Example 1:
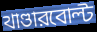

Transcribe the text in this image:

থাণ্ডারবোল্ট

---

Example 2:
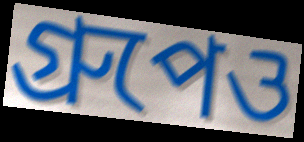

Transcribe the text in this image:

গ্রুপেও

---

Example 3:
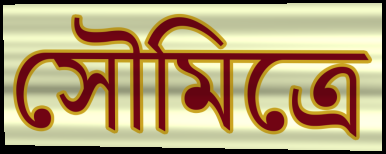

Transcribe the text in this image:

সৌমিত্রে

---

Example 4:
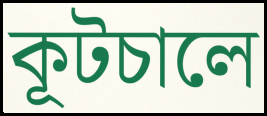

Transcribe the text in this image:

কূটচালে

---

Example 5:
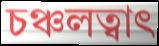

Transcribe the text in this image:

চঞ্চলত্বাৎ